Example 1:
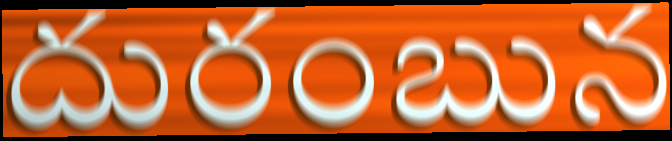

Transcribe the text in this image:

దురంబున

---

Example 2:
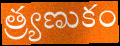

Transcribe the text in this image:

త్ర్యణుకం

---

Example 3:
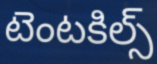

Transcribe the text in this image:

టెంటకిల్స్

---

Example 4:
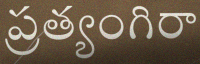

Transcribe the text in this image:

ప్రత్యంగిరా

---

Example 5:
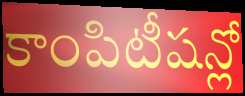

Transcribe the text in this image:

కాంపిటీషన్లో